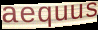
aequus